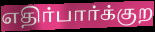
எதிர்பார்க்குற